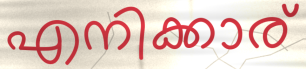
എനിക്കാര്